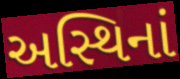
અસ્થિનાં